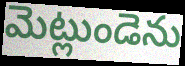
మెట్లుండెను